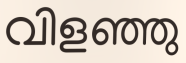
വിളഞ്ഞു